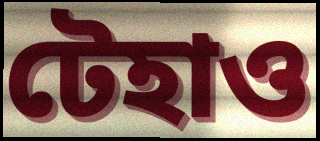
টেহাও